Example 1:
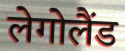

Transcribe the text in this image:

लेगोलैंड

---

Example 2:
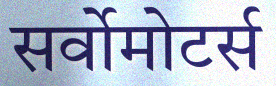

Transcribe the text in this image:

सर्वोमोटर्स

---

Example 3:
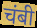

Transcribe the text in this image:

चंबी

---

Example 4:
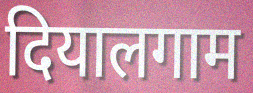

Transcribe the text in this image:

दियालगाम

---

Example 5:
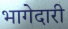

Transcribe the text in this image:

भागेदारी